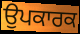
ਉਪਕਾਰਕ